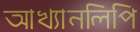
আখ্যানলিপি